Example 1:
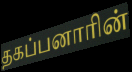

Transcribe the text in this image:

தகப்பனாரின்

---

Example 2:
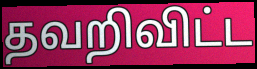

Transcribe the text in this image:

தவறிவிட்ட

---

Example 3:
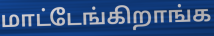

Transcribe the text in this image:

மாட்டேங்கிறாங்க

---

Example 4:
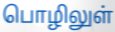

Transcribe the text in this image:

பொழிலுள்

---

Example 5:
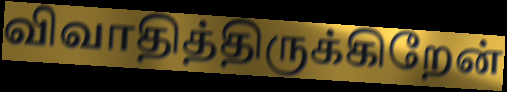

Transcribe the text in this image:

விவாதித்திருக்கிறேன்